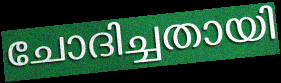
ചോദിച്ചതായി